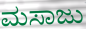
ಮಸಾಜು